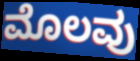
ಮೊಲವು